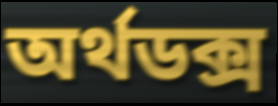
অৰ্থডক্স